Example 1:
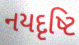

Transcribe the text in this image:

નયદૃષ્ટિ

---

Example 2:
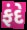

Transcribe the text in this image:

ફંદે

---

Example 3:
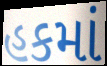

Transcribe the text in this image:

હકમાં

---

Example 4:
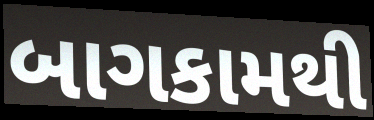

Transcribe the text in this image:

બાગકામથી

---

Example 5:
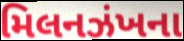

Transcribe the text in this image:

મિલનઝંખના